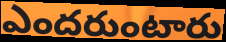
ఎందరుంటారు